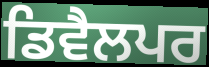
ਡਿਵੈਲਪਰ